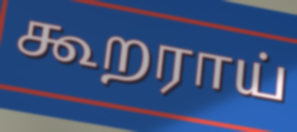
கூறராய்